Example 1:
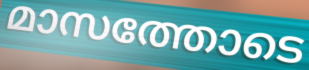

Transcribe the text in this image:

മാസത്തോടെ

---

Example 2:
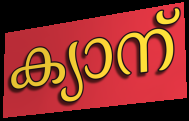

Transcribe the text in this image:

ക്യാന്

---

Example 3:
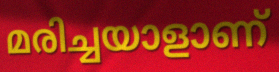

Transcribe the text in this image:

മരിച്ചയാളാണ്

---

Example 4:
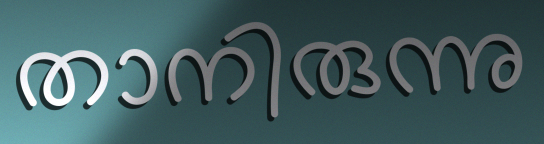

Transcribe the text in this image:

താനിരുന്നു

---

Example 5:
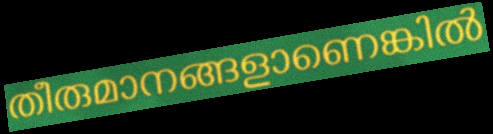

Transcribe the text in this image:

തീരുമാനങ്ങളാണെങ്കിൽ